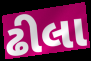
ઢીલા